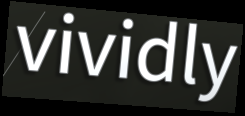
vividly